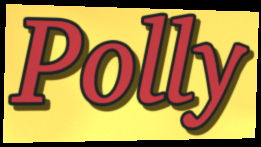
Polly